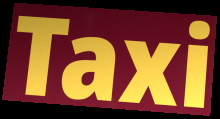
Taxi